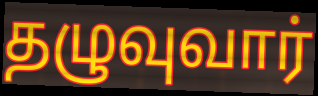
தழுவுவார்